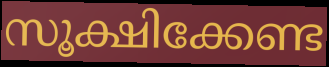
സൂക്ഷിക്കേണ്ട